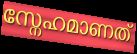
സ്നേഹമാണത്